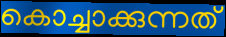
കൊച്ചാക്കുന്നത്